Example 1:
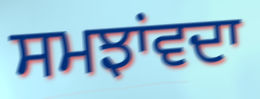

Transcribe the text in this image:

ਸਮਝਾਂਵਦਾ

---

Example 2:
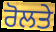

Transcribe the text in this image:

ਰੋਲਤੇ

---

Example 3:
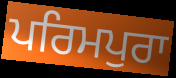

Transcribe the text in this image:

ਪਰਿਮਪੁਰਾ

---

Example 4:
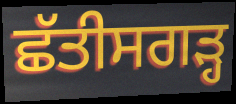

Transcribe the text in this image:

ਛੱਤੀਸਗਡ਼੍ਹ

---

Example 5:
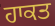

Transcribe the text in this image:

ਹਾਕਤ